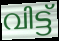
വിട്ട്